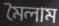
মৈলাম